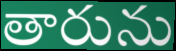
తారును